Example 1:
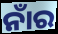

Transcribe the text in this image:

ନାଁର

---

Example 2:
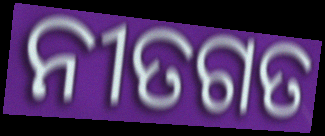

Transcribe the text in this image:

ନୀତଗତ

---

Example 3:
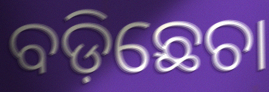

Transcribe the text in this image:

ବଡ଼ିଛେଚା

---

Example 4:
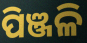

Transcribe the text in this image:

ପିଞ୍ଜଳି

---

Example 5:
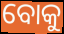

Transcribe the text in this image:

ବୋକୁ